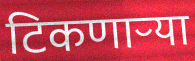
टिकणाऱ्या